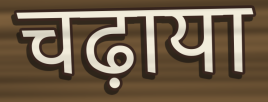
चढ़ाया